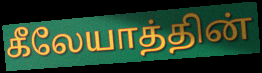
கீலேயாத்தின்